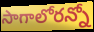
సాగాలోరన్నో